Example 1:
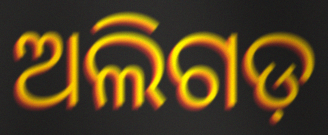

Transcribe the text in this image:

ଅଲିଗଡ଼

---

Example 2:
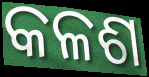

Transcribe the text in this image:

କଳଶ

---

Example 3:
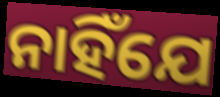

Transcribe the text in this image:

ନାହିଁଯେ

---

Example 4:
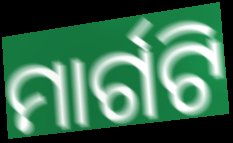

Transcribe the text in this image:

ମାର୍ଗଟି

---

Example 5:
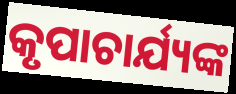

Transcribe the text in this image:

କୃପାଚାର୍ଯ୍ୟଙ୍କ